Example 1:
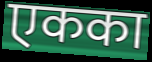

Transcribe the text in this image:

एकका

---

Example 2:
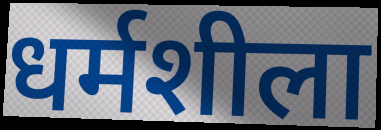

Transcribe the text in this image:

धर्मशीला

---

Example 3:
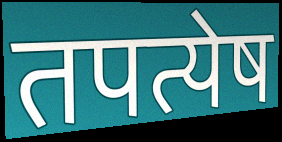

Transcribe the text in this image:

तपत्येष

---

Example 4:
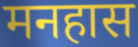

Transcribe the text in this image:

मनहास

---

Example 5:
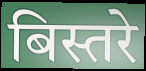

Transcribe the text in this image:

बिस्तरे